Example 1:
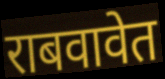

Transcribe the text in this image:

राबवावेत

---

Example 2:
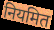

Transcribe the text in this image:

नियमित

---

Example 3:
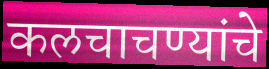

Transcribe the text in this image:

कलचाचण्यांचे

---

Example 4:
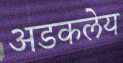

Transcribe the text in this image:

अडकलेय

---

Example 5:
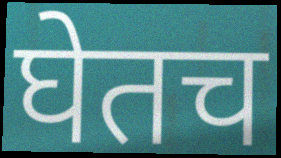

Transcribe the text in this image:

घेतच